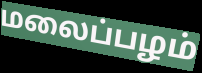
மலைப்பழம்